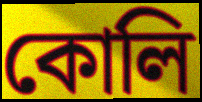
কোলি